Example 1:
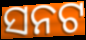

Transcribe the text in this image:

ସନଟ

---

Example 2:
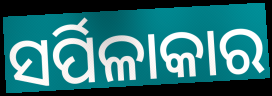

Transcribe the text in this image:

ସର୍ପିଳାକାର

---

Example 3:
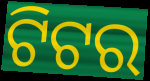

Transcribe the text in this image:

ଟିଟର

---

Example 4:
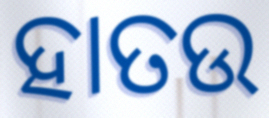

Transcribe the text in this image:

ହାତଉ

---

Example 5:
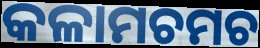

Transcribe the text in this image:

କଳାମଚମଚ